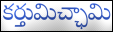
కర్తుమిచ్ఛామి